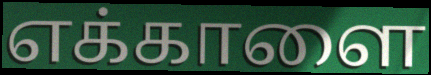
எக்காளை